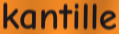
kantille